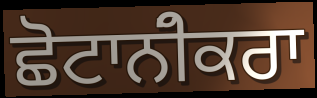
ਛੋਟਾਨੀੱਕਰਾ